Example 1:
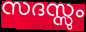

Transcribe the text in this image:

സദസ്സും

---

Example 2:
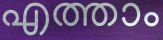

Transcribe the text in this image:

എത്താം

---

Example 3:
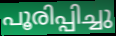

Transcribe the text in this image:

പൂരിപ്പിച്ചു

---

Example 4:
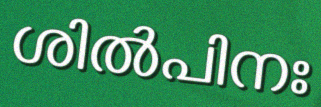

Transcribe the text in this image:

ശിൽപിനഃ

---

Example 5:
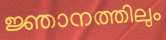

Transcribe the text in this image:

ജ്ഞാനത്തിലും